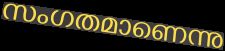
സംഗതമാണെന്നു